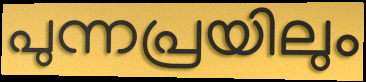
പുന്നപ്രയിലും